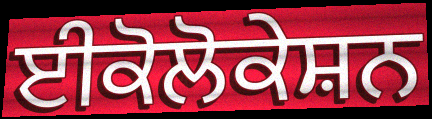
ਈਕੋਲੋਕੇਸ਼ਨ